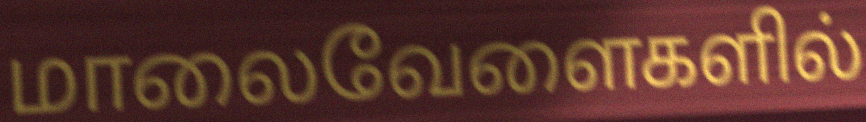
மாலைவேளைகளில்